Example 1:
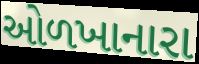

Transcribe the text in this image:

ઓળખાનારા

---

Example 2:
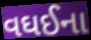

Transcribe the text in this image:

વઘઈના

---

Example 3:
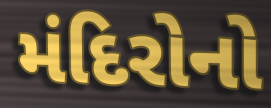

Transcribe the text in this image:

મંદિરોનો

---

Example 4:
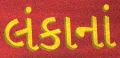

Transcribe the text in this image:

લંકાનાં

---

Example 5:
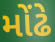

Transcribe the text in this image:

મોંઢે